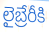
లైబ్రేరీకి